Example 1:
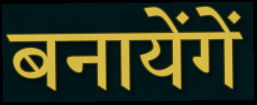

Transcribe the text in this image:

बनायेंगें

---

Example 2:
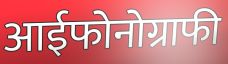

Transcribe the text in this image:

आईफोनोग्राफी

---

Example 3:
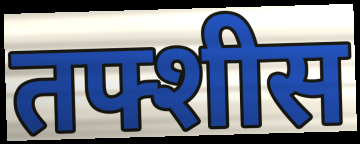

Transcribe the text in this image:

तफ्शीस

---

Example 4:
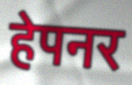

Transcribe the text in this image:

हेपनर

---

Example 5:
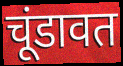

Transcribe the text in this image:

चूंडावत